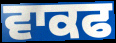
ਵਾਕਫ